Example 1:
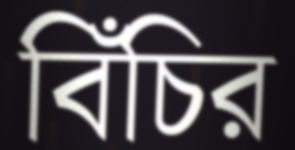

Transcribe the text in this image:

বিঁচির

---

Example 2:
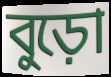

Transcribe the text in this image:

বুড়ো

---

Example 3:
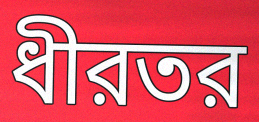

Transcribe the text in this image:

ধীরতর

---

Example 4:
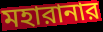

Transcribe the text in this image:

মহারানার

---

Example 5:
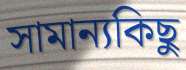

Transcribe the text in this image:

সামান্যকিছু